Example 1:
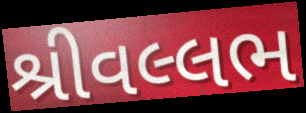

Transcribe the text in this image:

શ્રીવલ્લભ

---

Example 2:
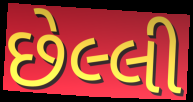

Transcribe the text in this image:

છેલ્લી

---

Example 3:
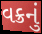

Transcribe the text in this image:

વક્રનું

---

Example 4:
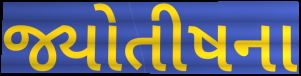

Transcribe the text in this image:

જ્યોતીષના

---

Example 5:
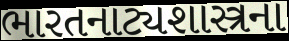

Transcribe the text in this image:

ભારતનાટ્યશાસ્ત્રના